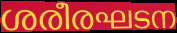
ശരീരഘടന